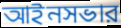
আইনসভার